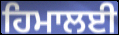
ਹਿਮਾਲਈ